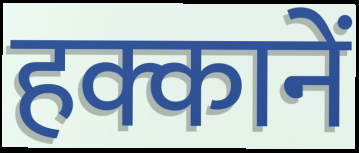
हक्कानें